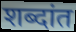
शब्दांत